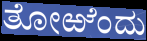
ತೋಱೆಂದು